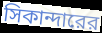
সিকান্দারের